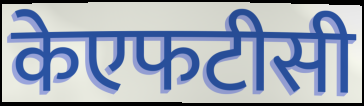
केएफटीसी